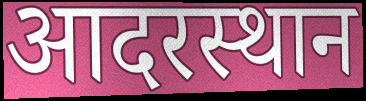
आदरस्थान